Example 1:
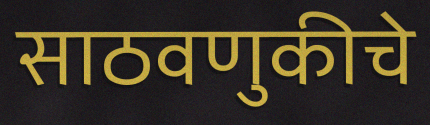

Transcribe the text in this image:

साठवणुकीचे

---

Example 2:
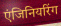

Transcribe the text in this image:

एंजिनियरिंग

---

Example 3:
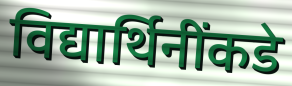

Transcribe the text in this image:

विद्यार्थिनींकडे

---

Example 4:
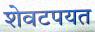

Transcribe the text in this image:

शेवटपयत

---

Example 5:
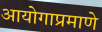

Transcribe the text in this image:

आयोगाप्रमाणे